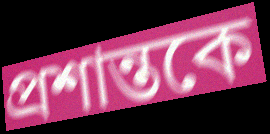
প্রশান্তকে